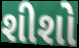
શીશો